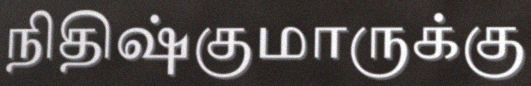
நிதிஷ்குமாருக்கு